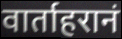
वार्ताहरानं